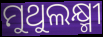
ମୁଥୁଲକ୍ଷ୍ମୀ